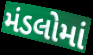
મંડલોમાં